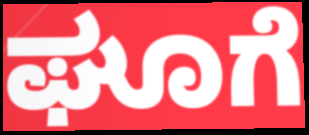
ಘೂಗೆ